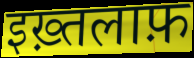
इख़्तलाफ़